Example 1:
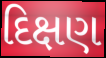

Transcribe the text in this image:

દિક્ષણ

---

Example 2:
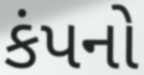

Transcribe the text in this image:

કંપનો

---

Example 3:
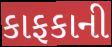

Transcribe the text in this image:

કાફકાની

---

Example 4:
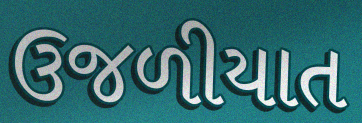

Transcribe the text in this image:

ઉજળીયાત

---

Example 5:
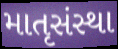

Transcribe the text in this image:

માતૃસંસ્થા